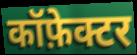
कॉफ़ेक्टर